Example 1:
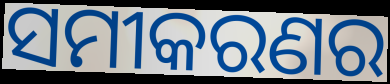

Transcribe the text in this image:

ସମୀକରଣର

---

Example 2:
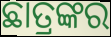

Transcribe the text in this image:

ଛାତ୍ରଙ୍କର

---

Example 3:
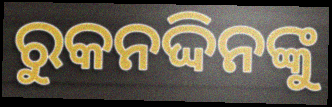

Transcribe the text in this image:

ରୁକନଦ୍ଦିନଙ୍କୁ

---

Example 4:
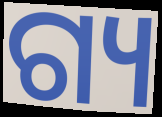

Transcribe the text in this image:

ଗ୍ୟ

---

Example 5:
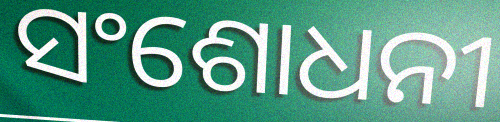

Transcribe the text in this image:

ସଂଶୋଧନୀ